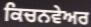
ਕਿਚਨਵੇਅਰ